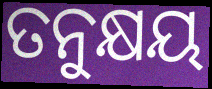
ତନୁକ୍ଷୟ